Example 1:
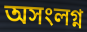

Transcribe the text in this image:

অসংলগ্ন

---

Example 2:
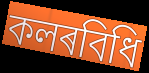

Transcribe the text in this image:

কলৰবিধি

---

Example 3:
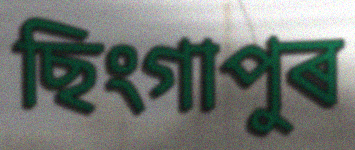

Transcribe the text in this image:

ছিংগাপুৰ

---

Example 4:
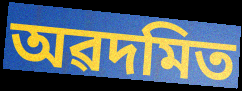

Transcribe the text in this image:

অৱদমিত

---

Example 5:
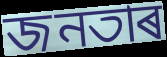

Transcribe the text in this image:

জনতাৰ